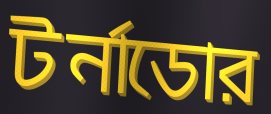
টর্নাডোর